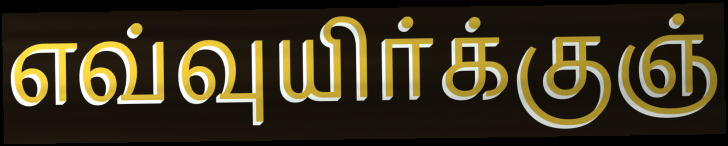
எவ்வுயிர்க்குஞ்